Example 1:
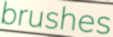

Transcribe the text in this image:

brushes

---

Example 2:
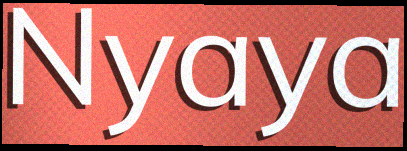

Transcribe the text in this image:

Nyaya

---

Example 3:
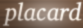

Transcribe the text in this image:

placard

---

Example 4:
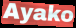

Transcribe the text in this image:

Ayako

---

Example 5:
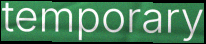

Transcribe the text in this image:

temporary